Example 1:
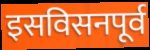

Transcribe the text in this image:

इसविसनपूर्व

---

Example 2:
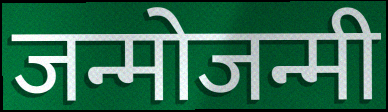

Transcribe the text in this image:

जन्मोजन्मी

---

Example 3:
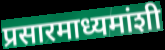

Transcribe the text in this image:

प्रसारमाध्यमांशी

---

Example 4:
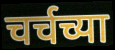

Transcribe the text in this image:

चर्चच्या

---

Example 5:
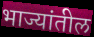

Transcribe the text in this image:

भाज्यांतील